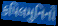
કપિલમુનિનો